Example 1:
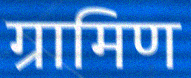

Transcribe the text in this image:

ग्रामिण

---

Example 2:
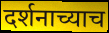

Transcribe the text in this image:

दर्शनाच्याच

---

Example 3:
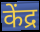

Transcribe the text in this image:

केंद्र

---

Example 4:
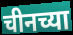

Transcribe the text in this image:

चीनच्या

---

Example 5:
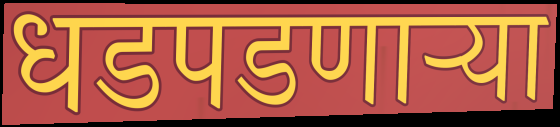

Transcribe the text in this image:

धडपडणाऱ्या